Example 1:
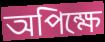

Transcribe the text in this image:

অপিক্ষে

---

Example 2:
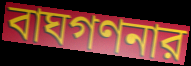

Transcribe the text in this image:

বাঘগণনার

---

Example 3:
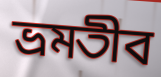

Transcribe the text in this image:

ভ্রমতীব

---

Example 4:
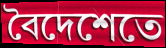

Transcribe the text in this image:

বৈদেশেতে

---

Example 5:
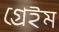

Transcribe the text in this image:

গ্রেইম